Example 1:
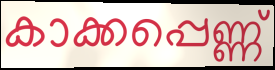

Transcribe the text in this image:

കാക്കപ്പെണ്ണ്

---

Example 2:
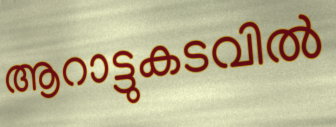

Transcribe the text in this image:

ആറാട്ടുകടവിൽ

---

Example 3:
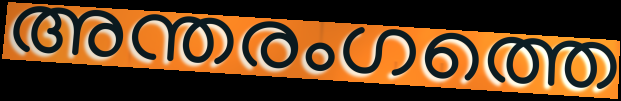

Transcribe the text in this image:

അന്തരംഗത്തെ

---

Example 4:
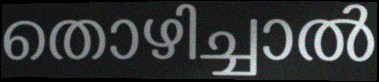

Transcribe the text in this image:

തൊഴിച്ചാൽ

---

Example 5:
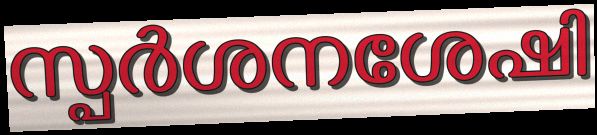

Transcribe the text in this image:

സ്പർശനശേഷി